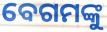
ବେଗମଙ୍କୁ